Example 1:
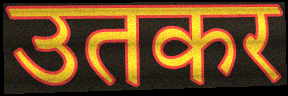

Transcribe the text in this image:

उतकर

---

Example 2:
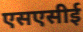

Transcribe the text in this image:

एसएसीई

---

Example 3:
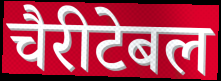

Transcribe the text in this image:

चैरीटेबल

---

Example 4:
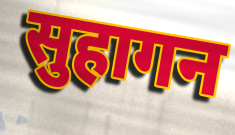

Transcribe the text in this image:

सुहागन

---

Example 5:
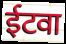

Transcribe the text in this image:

ईटवा